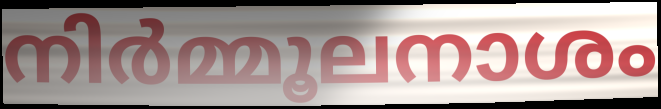
നിർമ്മൂലനാശം